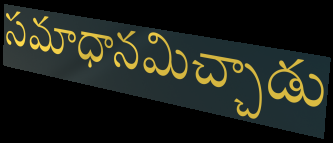
సమాధానమిచ్చాడు